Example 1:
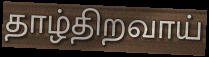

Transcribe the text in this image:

தாழ்திறவாய்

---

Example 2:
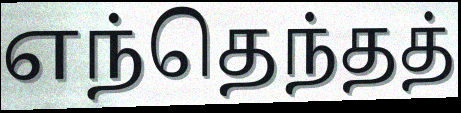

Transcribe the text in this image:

எந்தெந்தத்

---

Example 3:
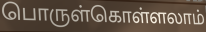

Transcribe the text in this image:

பொருள்கொள்ளலாம்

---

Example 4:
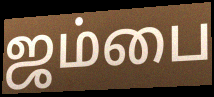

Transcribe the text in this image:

ஜம்பை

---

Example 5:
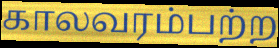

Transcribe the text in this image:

காலவரம்பற்ற